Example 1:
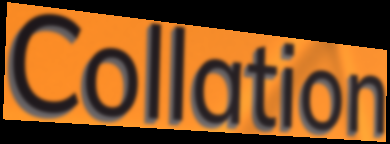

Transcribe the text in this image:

Collation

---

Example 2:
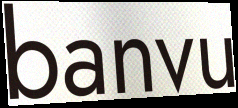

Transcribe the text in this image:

banvu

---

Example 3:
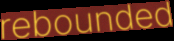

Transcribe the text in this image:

rebounded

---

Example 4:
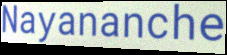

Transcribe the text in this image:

Nayananche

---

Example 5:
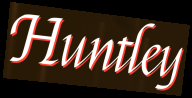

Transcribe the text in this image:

Huntley